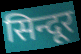
सिन्दूर